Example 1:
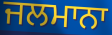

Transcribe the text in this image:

ਜਲਮਾਨਾ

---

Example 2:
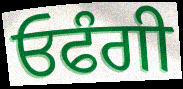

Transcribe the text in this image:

ਓਫੰਗੀ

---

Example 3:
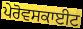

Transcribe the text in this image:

ਪੇਰੋਵਸਕਾਈਟ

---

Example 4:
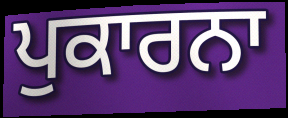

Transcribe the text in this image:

ਪੁਕਾਰਨਾ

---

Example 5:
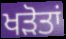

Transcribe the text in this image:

ਖੜੋਤਾਂ